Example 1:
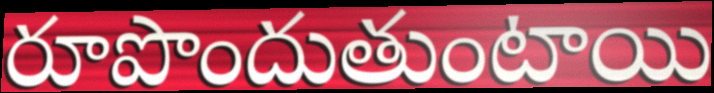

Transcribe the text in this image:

రూపొందుతుంటాయి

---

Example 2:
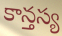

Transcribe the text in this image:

కాన్తస్య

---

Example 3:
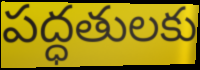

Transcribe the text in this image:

పద్ధతులకు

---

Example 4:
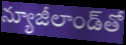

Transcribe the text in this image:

న్యూజీలాండ్‌తో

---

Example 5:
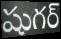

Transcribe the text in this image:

షుగర్